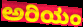
ಅರಿಯಂ